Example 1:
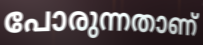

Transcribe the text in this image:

പോരുന്നതാണ്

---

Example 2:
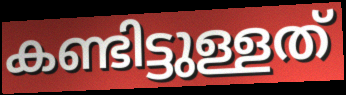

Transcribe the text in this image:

കണ്ടിട്ടുള്ളത്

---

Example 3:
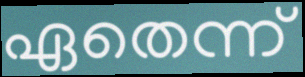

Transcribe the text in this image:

ഏതെന്ന്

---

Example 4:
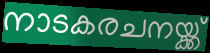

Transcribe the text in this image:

നാടകരചനയ്ക്ക്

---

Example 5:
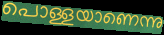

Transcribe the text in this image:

പൊള്ളയാണെന്നു